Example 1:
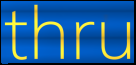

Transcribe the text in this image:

thru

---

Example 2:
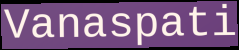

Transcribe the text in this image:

Vanaspati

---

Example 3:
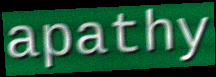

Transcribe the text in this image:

apathy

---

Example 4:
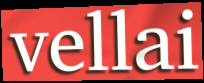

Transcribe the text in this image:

vellai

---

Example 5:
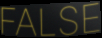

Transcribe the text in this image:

FALSE